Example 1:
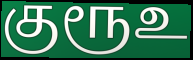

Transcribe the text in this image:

குரூஉ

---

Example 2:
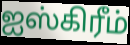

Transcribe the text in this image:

ஐஸ்கிரீம்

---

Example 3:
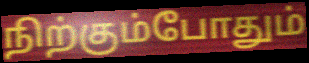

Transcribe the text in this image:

நிற்கும்போதும்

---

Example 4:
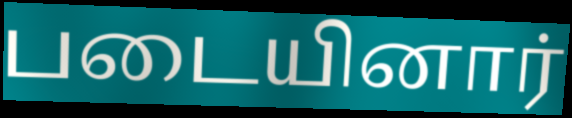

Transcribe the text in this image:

படையினார்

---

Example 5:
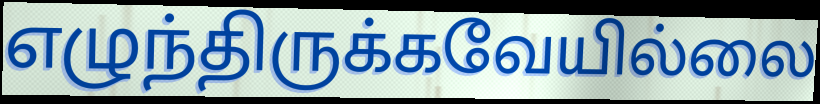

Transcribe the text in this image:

எழுந்திருக்கவேயில்லை